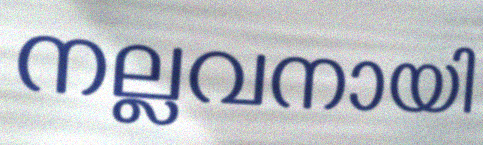
നല്ലവനായി